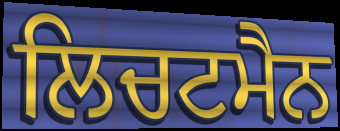
ਲਿਚਟਮੈਨ